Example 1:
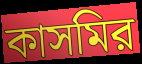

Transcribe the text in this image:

কাসমির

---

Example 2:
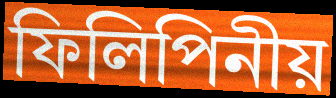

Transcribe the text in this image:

ফিলিপিনীয়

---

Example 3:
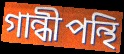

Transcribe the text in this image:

গান্ধীপন্থি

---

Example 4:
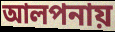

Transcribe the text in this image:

আলপনায়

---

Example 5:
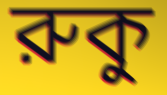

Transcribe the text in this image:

রুকু